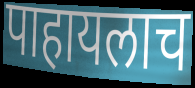
पाहायलाच